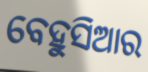
ବେହୁସିଆର